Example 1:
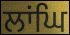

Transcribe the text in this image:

ਲਾਂਘਿ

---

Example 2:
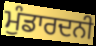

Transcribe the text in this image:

ਮੁੰਡਾਰਦਨੀ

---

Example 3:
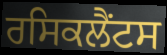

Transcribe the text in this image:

ਰਸਿਕਲੈਂਟਸ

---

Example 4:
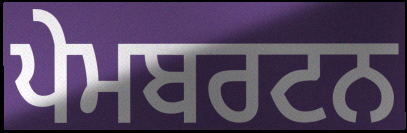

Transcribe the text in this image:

ਪੇਮਬਰਟਨ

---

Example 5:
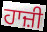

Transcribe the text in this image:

ਹਾਜ਼ੀ